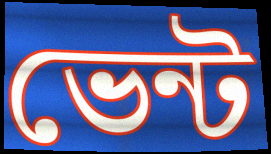
ভেন্ট